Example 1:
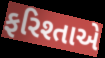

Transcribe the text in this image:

ફરિશ્તાએ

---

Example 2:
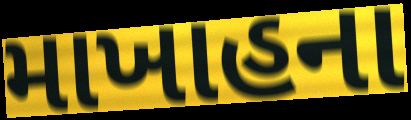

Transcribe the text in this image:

માખાહના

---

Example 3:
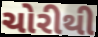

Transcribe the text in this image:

ચોરીથી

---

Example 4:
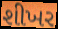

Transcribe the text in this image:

શીખર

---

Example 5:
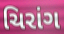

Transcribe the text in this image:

ચિરાંગ